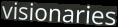
visionaries